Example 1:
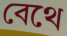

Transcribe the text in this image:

বেথে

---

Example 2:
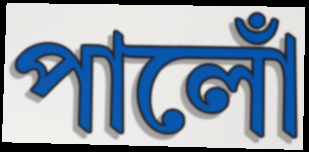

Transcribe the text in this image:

পালোঁ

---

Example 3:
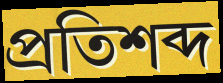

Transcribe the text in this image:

প্ৰতিশব্দ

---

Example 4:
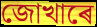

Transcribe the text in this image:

জোখাৰে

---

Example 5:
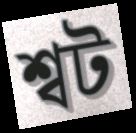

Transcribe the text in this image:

শ্বট